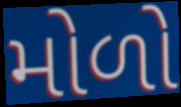
મોળો